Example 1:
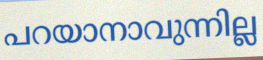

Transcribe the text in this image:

പറയാനാവുന്നില്ല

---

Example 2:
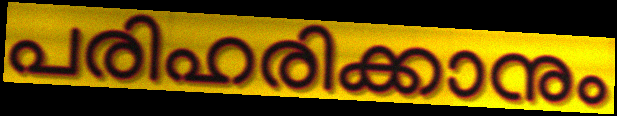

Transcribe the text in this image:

പരിഹരിക്കാനും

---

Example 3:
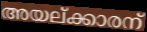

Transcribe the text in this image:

അയല്ക്കാരന്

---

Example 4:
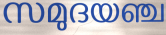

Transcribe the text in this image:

സമുദയഞ്ച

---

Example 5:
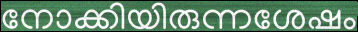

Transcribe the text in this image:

നോക്കിയിരുന്നശേഷം